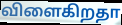
விளைகிறதா